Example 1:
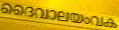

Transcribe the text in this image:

ദൈവാലയംവക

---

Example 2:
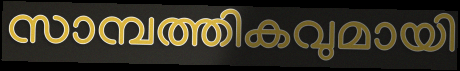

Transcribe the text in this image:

സാമ്പത്തികവുമായി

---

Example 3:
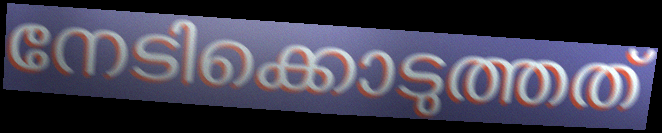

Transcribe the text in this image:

നേടിക്കൊടുത്തത്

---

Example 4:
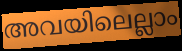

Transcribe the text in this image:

അവയിലെല്ലാം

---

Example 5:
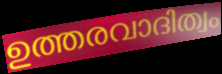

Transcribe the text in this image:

ഉത്തരവാദിത്വം